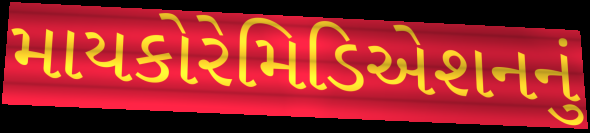
માયકોરેમિડિએશનનું